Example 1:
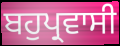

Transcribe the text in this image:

ਬਹੁਪ੍ਰਵਾਸੀ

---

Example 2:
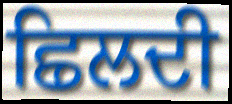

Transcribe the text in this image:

ਛਿਲਦੀ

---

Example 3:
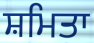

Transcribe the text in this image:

ਸ਼ਮਿਤਾ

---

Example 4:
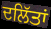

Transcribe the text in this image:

ਦਲਿੱਤਾਂ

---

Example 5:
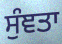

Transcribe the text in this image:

ਸੁੰਞਤਾ